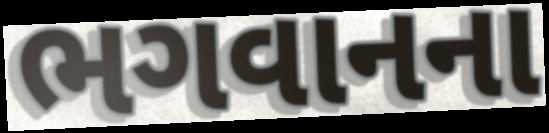
ભગવાનના